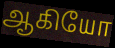
ஆகியோ